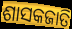
ଶାସକଜାତି